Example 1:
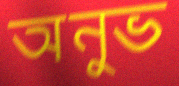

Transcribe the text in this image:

অনুভ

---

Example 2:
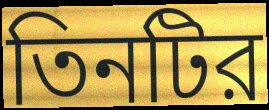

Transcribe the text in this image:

তিনটির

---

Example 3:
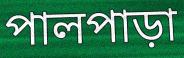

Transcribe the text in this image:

পালপাড়া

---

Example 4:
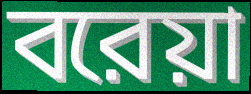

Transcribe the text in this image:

বরেয়া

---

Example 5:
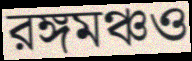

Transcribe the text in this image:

রঙ্গমঞ্চও